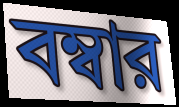
বম্বার